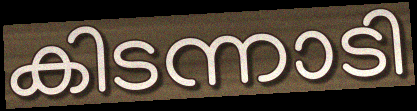
കിടന്നാടി